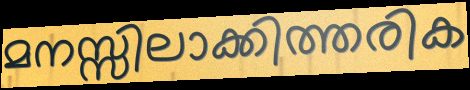
മനസ്സിലാക്കിത്തരിക